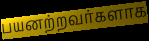
பயனற்றவர்களாக